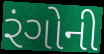
રંગોની